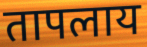
तापलाय